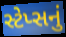
સ્ટેપ્સનું